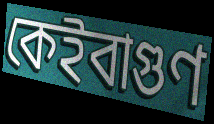
কেইবাগুণ